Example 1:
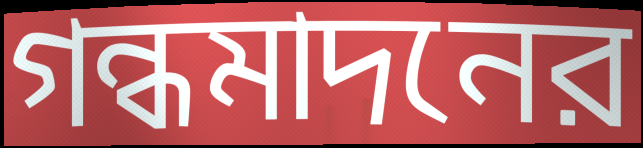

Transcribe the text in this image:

গন্ধমাদনের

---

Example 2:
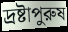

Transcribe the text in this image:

দ্রষ্টাপুরুষ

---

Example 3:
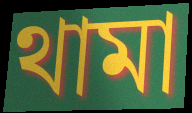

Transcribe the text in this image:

থামা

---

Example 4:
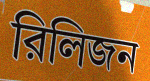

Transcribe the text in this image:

রিলিজন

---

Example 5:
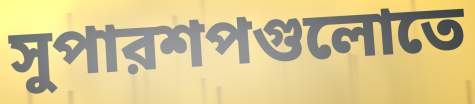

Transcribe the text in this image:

সুপারশপগুলোতে